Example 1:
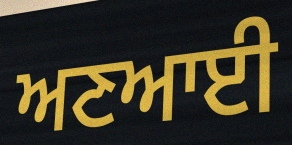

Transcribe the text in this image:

ਅਣਆਈ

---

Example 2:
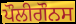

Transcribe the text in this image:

ਪੌਲੀਗੌਨਸ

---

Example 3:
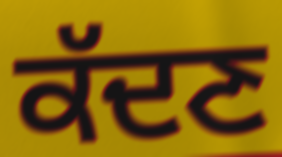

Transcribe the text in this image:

ਕੱਦਣ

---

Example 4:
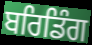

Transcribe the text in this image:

ਬਰਿਡਿੰਗ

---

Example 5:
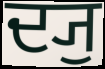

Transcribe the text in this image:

ਦ੍ਯੁ